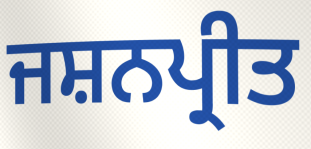
ਜਸ਼ਨਪ੍ਰੀਤ